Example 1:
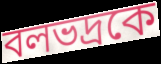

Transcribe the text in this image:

বলভদ্রকে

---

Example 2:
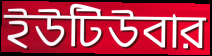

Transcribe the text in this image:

ইউটিউবার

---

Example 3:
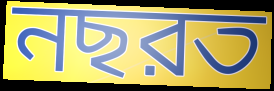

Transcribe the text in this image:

নছরত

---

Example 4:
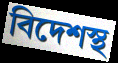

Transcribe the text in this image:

বিদেশস্থ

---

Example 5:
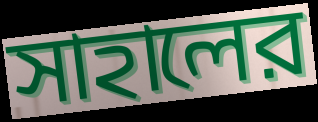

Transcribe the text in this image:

সাহালের